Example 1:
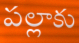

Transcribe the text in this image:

పల్లాకు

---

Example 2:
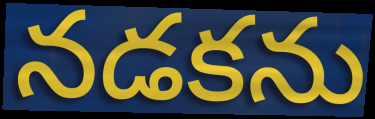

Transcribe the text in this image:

నడకను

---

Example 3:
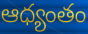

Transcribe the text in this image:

ఆధ్యంతం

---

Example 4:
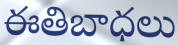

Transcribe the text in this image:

ఈతిబాధలు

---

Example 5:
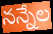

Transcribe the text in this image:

నన్నేల